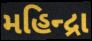
મહિન્દ્રા